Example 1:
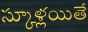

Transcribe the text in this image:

స్కూళ్లయితే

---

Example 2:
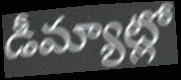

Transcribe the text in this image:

డీమ్యాట్లో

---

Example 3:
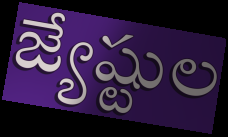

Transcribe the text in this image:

జ్యేష్టుల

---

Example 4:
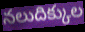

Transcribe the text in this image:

నలుదిక్కుల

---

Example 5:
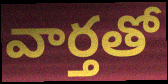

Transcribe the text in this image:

వార్తతో